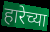
हारेच्या